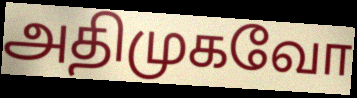
அதிமுகவோ